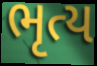
ભૃત્ય